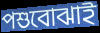
পশুবোঝাই